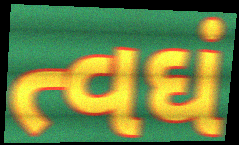
ત્વઘં